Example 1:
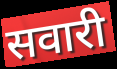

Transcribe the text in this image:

सवारी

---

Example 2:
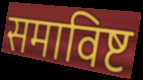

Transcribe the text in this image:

समाविष्ट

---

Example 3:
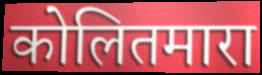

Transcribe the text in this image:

कोलितमारा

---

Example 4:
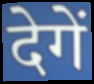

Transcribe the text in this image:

देगें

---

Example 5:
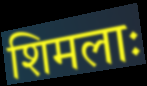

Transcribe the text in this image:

शिमलाः